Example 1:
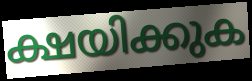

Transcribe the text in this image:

ക്ഷയിക്കുക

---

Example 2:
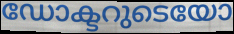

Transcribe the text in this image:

ഡോക്ടറുടെയോ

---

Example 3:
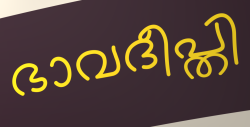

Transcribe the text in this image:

ഭാവദീപ്തി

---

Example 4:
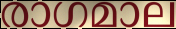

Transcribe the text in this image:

രാഗമാല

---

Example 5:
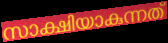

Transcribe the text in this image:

സാക്ഷിയാകുന്നത്